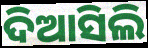
ଦିଆସିଲି